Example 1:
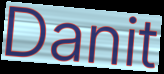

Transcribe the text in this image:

Danit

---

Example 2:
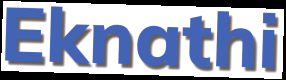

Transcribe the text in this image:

Eknathi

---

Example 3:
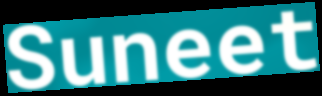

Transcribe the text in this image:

Suneet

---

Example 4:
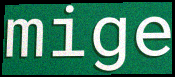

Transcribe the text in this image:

mige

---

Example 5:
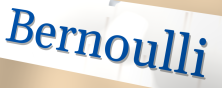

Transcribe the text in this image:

Bernoulli